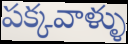
పక్కవాళ్ళు